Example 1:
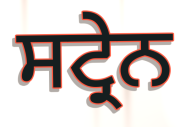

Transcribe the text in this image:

ਸਟ੍ਰੇਨ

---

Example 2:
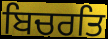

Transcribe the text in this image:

ਬਿਚਰਤਿ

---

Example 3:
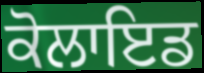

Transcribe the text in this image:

ਕੋਲਾਇਡ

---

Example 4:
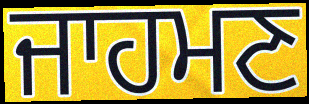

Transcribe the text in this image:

ਜਾਹਮਣ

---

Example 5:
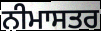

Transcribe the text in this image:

ਨੀਮਾਸਤਰ